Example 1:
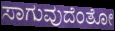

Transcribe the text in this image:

ಸಾಗುವುದೆಂತೋ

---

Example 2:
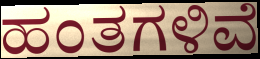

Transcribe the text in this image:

ಹಂತಗಳಿವೆ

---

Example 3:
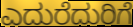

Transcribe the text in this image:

ಎದುರೆದುರಿಗೆ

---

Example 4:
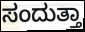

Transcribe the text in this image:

ಸಂದುತ್ತಾ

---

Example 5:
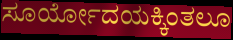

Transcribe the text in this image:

ಸೂರ್ಯೋದಯಕ್ಕಿಂತಲೂ